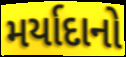
મર્યાદાનો